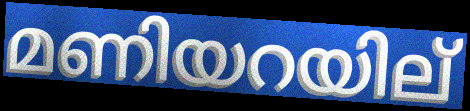
മണിയറയില്